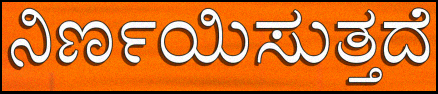
ನಿರ್ಣಯಿಸುತ್ತದೆ